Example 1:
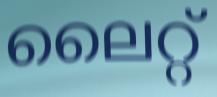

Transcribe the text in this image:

ലൈറ്റ്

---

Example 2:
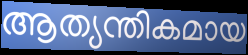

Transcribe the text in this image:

ആത്യന്തികമായ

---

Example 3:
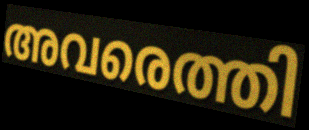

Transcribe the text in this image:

അവരെത്തി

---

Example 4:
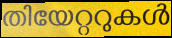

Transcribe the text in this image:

തിയേറ്ററുകൾ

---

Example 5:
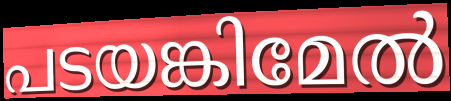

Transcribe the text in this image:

പടയങ്കിമേൽ